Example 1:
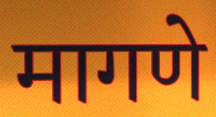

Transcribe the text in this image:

मागणे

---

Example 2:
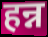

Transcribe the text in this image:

हन्न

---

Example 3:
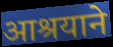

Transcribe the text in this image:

आश्रयाने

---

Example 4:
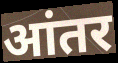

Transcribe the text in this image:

आंतर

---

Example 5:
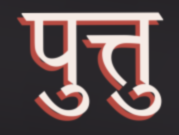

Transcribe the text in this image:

पुत्तु